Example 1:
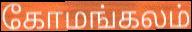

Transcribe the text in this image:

கோமங்கலம்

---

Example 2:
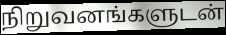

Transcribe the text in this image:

நிறுவனங்களுடன்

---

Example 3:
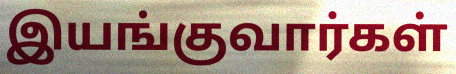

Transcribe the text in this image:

இயங்குவார்கள்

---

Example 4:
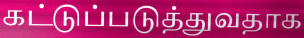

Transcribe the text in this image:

கட்டுப்படுத்துவதாக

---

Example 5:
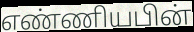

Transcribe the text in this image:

எண்ணியபின்